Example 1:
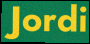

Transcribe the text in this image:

Jordi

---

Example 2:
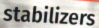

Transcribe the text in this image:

stabilizers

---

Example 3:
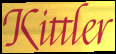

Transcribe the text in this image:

Kittler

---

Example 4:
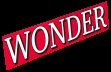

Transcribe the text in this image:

WONDER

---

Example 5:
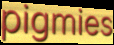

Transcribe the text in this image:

pigmies